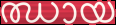
ഝായ